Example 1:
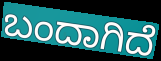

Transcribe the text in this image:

ಬಂದಾಗಿದೆ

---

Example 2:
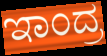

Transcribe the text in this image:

ಇಾಂದ್ರ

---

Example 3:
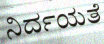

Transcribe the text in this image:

ನಿರ್ದಯತೆ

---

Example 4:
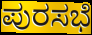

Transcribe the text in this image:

ಪುರಸಭೆ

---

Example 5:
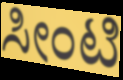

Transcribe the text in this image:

ಸೀಂಟಿ